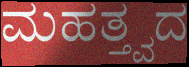
ಮಹತ್ತ್ವದ